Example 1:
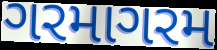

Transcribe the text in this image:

ગરમાગરમ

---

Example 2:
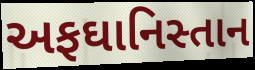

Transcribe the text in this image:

અફઘાનિસ્તાન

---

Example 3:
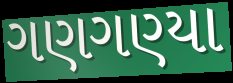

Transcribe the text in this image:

ગણગણ્યા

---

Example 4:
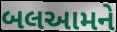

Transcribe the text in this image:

બલઆમને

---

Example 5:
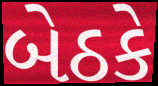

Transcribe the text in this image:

બેઠકે